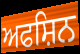
ਅਫਸ਼ਿਨ